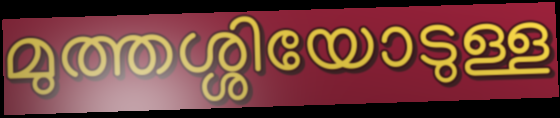
മുത്തശ്ശിയോടുള്ള